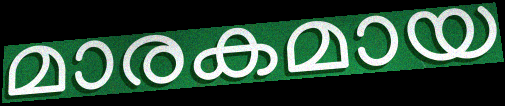
മാരകമായ